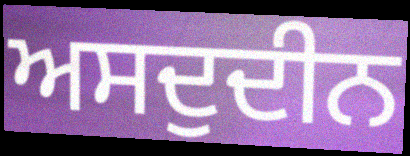
ਅਸਦੁਦੀਨ